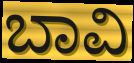
ಬಾವಿ